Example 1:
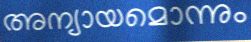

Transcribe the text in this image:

അന്യായമൊന്നും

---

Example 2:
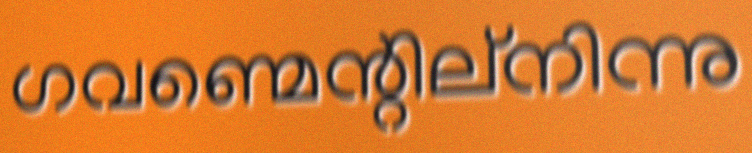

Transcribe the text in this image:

ഗവണ്മെന്റില്നിന്നു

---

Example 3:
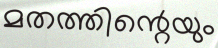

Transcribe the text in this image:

മതത്തിന്റെയും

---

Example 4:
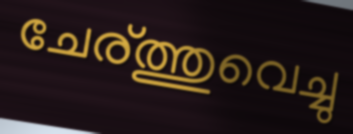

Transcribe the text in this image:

ചേര്ത്തുവെച്ചു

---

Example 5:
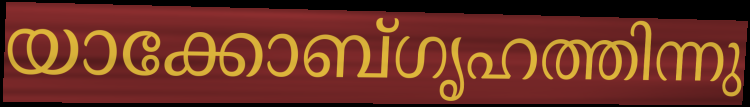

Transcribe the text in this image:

യാക്കോബ്ഗൃഹത്തിന്നു